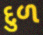
દુળ